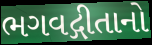
ભગવદ્ગીતાનો